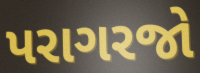
પરાગરજો